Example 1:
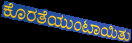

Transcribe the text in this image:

ಕೊರತೆಯುಂಟಾಯಿತು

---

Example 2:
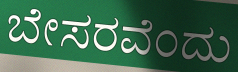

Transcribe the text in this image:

ಬೇಸರವೆಂದು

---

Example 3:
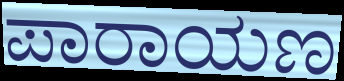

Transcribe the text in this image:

ಪಾರಾಯಣ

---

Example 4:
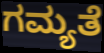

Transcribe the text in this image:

ಗಮ್ಯತೆ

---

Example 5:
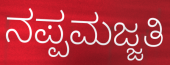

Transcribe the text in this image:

ನಪ್ಪಮಜ್ಜತಿ